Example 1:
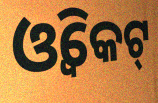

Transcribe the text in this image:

ଓ୍ଵିକେଟ୍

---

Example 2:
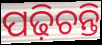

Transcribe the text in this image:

ପଢ଼ିଚନ୍ତି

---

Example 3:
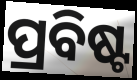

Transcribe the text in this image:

ପ୍ରବିଷ୍ଟ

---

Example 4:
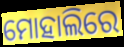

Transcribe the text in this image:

ମୋହାଲିରେ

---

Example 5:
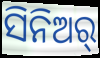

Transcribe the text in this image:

ସିନିଅର୍